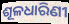
ଶୂଳଧାରିଣୀ